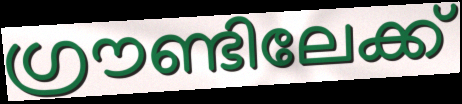
ഗ്രൗണ്ടിലേക്ക്